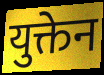
युक्तेन